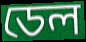
ডেল